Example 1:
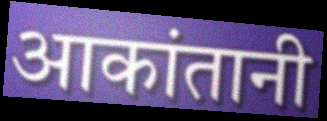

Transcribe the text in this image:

आकांतानी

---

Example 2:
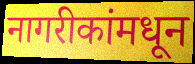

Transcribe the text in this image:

नागरीकांमधून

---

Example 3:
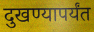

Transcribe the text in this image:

दुखण्यापर्यंत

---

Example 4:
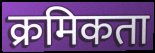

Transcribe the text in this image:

क्रमिकता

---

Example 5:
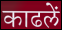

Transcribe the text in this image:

काढलें